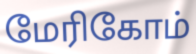
மேரிகோம்